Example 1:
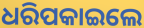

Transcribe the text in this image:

ଧରିପକାଇଲେ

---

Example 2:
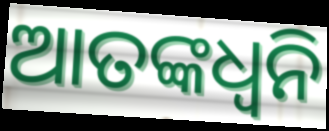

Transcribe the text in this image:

ଆତଙ୍କଧ୍ଵନି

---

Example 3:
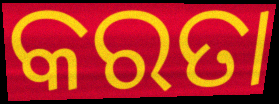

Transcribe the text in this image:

କରତା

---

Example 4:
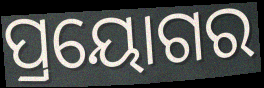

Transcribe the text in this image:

ପ୍ରୟୋଗର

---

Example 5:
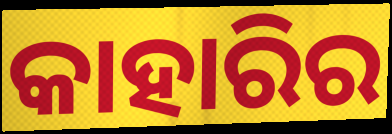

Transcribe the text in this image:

କାହାରିର